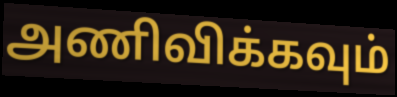
அணிவிக்கவும்